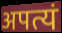
अपत्यं